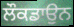
ਲੌਕਡਾਉਨ